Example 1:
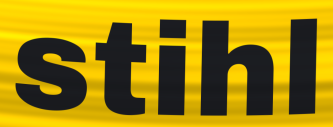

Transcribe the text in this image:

stihl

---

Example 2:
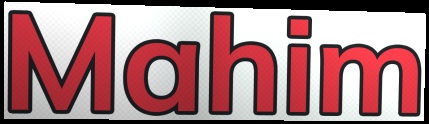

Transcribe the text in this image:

Mahim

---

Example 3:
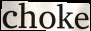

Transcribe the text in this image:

choke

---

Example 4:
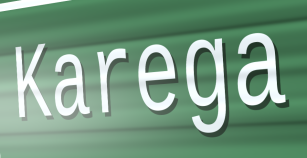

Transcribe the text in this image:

Karega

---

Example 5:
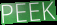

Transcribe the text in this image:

PEEK